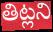
తిట్లని